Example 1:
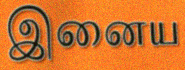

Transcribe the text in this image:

இனைய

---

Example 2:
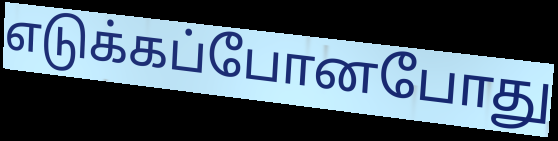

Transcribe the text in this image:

எடுக்கப்போனபோது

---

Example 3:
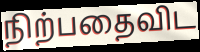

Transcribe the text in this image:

நிற்பதைவிட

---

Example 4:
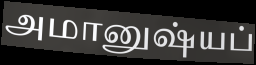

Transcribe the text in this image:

அமானுஷ்யப்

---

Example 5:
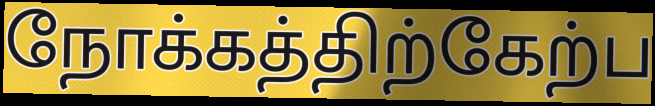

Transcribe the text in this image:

நோக்கத்திற்கேற்ப